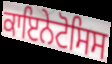
ਕਾਇਨੇਟੋਸਿਸ